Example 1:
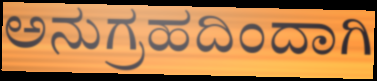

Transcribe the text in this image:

ಅನುಗ್ರಹದಿಂದಾಗಿ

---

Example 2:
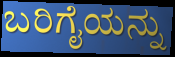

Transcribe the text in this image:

ಬರಿಗೈಯನ್ನು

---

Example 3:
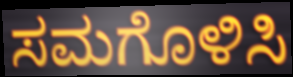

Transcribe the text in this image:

ಸಮಗೊಳಿಸಿ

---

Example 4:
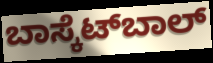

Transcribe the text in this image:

ಬಾಸ್ಕೆಟ್‍ಬಾಲ್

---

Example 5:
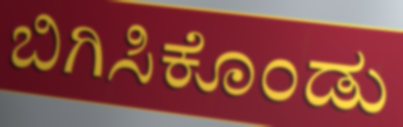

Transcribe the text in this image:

ಬಿಗಿಸಿಕೊಂಡು